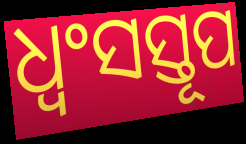
ଧ୍ୱଂସସ୍ତୂପ